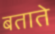
बताते